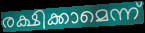
രക്ഷിക്കാമെന്ന്